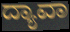
ದ್ಯಾವಾ